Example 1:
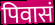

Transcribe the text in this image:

पिवासं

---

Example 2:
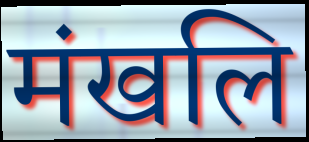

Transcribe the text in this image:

मंखलि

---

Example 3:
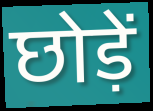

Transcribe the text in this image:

छोड़ें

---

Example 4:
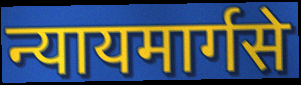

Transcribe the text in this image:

न्यायमार्गसे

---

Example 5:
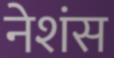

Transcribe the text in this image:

नेशंस